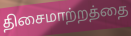
திசைமாற்றத்தை